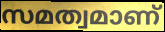
സമത്വമാണ്